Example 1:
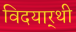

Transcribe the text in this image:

विदयार्थी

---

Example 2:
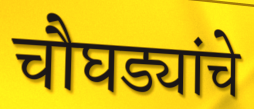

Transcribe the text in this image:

चौघड्यांचे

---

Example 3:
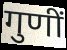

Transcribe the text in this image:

गुणीं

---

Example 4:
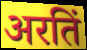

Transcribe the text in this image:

अरतिं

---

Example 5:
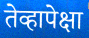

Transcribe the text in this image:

तेव्हापेक्षा